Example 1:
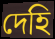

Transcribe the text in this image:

দেহি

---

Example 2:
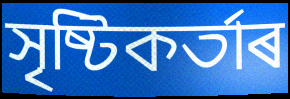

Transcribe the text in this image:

সৃষ্টিকৰ্তাৰ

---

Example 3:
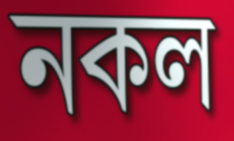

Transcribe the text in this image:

নকল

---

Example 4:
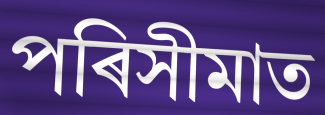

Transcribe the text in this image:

পৰিসীমাত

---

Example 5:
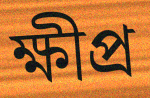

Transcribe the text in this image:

ক্ষীপ্ৰ